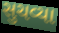
સુચવ્યા